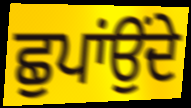
ਛੁਪਾਂਉਂਦੇ